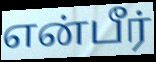
என்பீர்